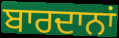
ਬਾਰਦਾਨਾਂ